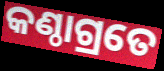
କଣ୍ଠାଗ୍ରତେ